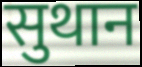
सुथान